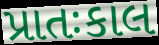
પ્રાતઃકાલ